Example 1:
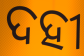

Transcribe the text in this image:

ଦହୀ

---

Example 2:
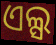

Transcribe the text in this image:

ଏଲ୍ସ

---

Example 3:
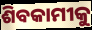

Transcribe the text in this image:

ଶିବକାମୀକୁ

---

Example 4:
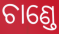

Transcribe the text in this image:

ଚାଣ୍ଡେ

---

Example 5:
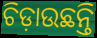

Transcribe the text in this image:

ଚିଡ଼ାଉଛନ୍ତି